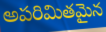
అపరిమితమైన